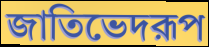
জাতিভেদরূপ